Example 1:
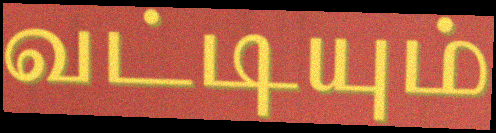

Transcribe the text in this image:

வட்டியும்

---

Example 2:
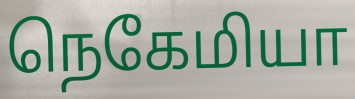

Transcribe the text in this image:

நெகேமியா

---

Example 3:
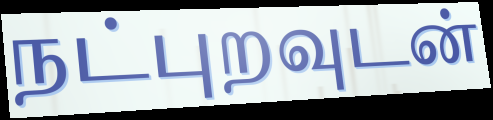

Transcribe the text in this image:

நட்புறவுடன்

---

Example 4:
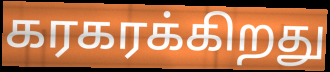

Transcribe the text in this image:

கரகரக்கிறது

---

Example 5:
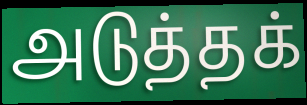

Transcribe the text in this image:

அடுத்தக்